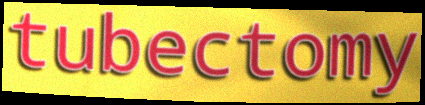
tubectomy